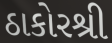
ઠાકોરશ્રી